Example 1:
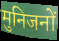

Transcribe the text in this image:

मुनिजनों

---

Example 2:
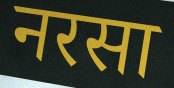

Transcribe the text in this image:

नरसा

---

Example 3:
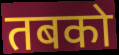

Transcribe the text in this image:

तबको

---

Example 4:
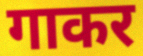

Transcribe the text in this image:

गाकर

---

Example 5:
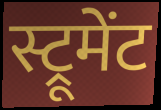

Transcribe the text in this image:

स्ट्रूमेंट